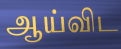
ஆய்விட